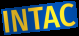
INTAC